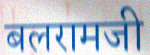
बलरामजी